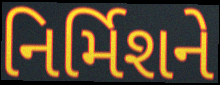
નિર્મિશને